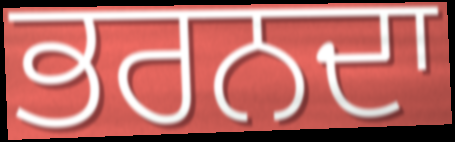
ਭਰਨਦਾ